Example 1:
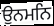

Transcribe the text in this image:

ਉਨਮਨਿ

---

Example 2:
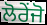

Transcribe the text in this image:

ਲੋਰੇਂਜੋ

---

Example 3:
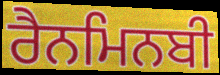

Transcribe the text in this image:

ਰੈਨਮਿਨਬੀ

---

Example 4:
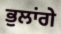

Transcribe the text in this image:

ਭੁਲਾਂਗੇ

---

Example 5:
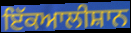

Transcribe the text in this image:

ਇੱਕਆਲੀਸ਼ਾਨ